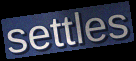
settles